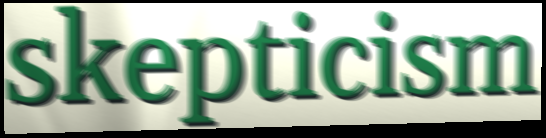
skepticism